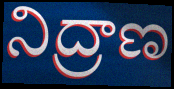
నిద్రాణ